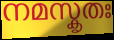
നമസ്കൃതഃ